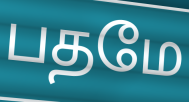
பதமே